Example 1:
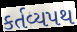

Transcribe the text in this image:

કર્તવ્યપથ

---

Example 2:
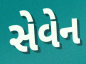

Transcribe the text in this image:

સેવેન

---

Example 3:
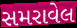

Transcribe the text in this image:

સમરાવેલ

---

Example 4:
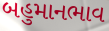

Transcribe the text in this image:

બહુમાનભાવ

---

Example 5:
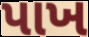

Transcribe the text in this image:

પાખ